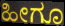
ಹೀಗೂ